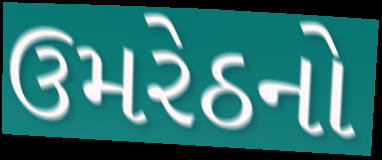
ઉમરેઠનો